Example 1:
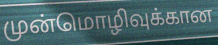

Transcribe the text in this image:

முன்மொழிவுக்கான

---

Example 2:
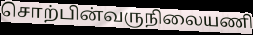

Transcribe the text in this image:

சொற்பின்வருநிலையணி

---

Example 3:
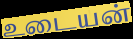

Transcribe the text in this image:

உடையன்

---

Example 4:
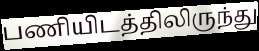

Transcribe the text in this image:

பணியிடத்திலிருந்து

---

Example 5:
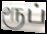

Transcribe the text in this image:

ரூப்